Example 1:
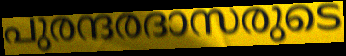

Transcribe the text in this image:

പുരന്ദരദാസരുടെ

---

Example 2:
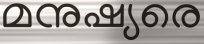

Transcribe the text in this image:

മനുഷ്യരെ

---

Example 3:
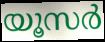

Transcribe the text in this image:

യൂസർ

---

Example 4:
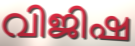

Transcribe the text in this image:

വിജിഷ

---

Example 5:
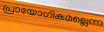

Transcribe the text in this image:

പ്രായോഗികമല്ലെന്ന